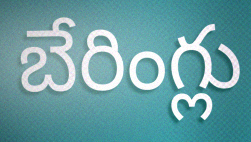
బేరింగ్లు